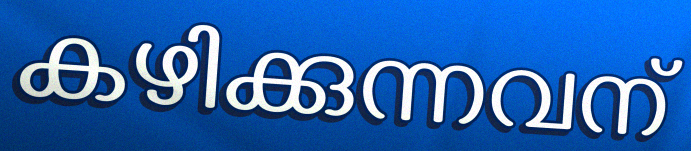
കഴിക്കുന്നവന്